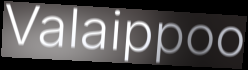
Valaippoo